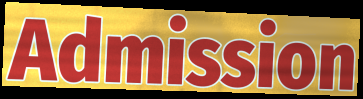
Admission